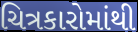
ચિત્રકારોમાંથી